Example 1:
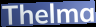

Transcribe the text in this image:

Thelma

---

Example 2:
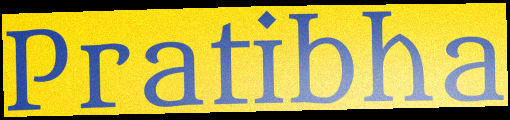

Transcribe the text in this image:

Pratibha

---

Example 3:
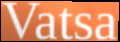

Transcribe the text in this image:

Vatsa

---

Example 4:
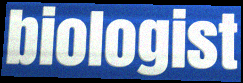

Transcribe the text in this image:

biologist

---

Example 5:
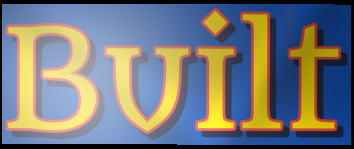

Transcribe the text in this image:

Built